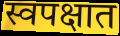
स्वपक्षात